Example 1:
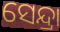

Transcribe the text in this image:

ସେନ୍ଦ୍ରା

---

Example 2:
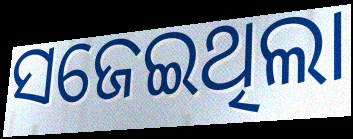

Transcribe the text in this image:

ସଜେଇଥିଲା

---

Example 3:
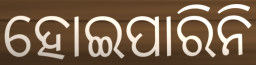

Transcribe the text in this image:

ହୋଇପାରିନି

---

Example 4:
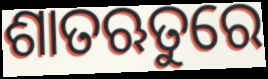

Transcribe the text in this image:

ଶାତଋତୁରେ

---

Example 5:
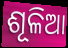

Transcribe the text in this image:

ଶୂଳିଆ